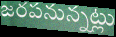
జరపనున్నట్లు